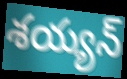
శయ్యన్